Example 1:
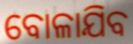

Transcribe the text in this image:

ବୋଳାଯିବ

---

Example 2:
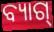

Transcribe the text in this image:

ବ୍ୟାଗ୍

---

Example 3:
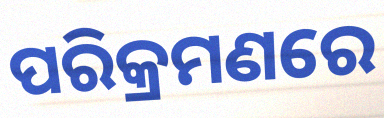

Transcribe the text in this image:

ପରିକ୍ରମଣରେ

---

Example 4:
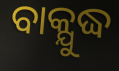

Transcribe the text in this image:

ବାକ୍ଯୁଦ୍ଧ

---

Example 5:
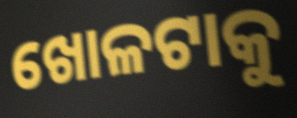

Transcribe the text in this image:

ଖୋଳଟାକୁ